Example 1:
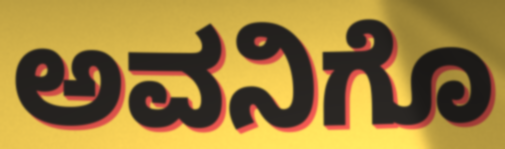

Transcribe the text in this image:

ಅವನಿಗೊ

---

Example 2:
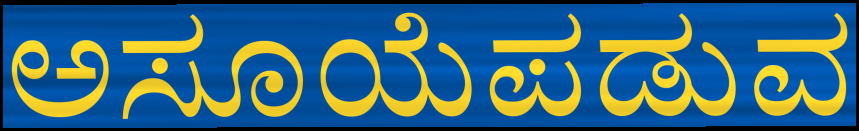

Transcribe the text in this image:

ಅಸೂಯೆಪಡುವ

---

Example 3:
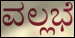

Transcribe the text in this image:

ವಲ್ಲಭೆ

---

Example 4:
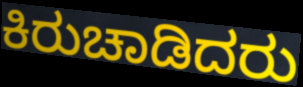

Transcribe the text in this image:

ಕಿರುಚಾಡಿದರು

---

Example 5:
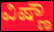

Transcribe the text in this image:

ವಿಷ್ಣೌ